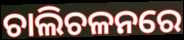
ଚାଲିଚଳନରେ